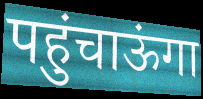
पहुंचाऊंगा